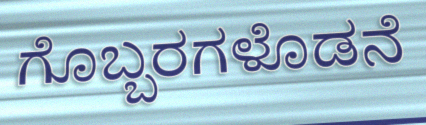
ಗೊಬ್ಬರಗಳೊಡನೆ